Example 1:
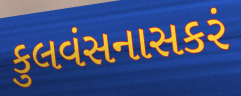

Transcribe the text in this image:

કુલવંસનાસકરં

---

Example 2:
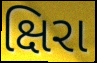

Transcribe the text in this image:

ક્ષિરા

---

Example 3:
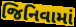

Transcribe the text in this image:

જિનિવામાં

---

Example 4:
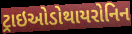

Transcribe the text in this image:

ટ્રાઇઓડોથાયરોનિન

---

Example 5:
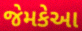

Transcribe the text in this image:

જેમકેઆ